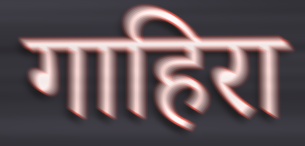
गाहिरा